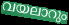
വയലാറും